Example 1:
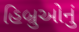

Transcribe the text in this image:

હિબ્રુઓનું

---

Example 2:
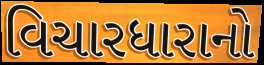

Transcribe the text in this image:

વિચારધારાનો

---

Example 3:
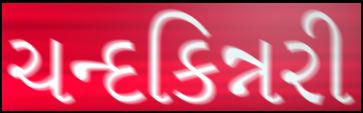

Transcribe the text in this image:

ચન્દકિન્નરી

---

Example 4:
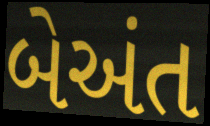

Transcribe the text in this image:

બેઅંત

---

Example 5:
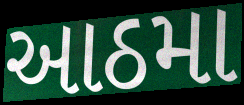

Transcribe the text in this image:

આઠમા